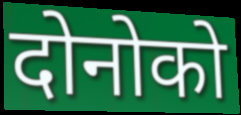
दोनोको